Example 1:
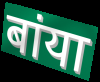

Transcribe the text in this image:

बांया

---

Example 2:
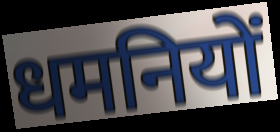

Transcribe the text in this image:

धमनियों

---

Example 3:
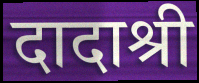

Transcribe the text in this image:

दादाश्री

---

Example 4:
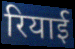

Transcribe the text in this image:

रियाई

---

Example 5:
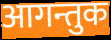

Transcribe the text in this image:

आगन्तुक